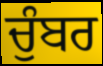
ਚੁੰਬਰ